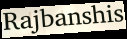
Rajbanshis